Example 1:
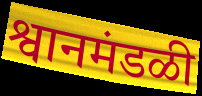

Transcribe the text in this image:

श्वानमंडळी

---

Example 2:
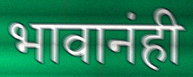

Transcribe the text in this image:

भावानंही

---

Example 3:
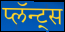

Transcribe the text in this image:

प्लॅन्ट्स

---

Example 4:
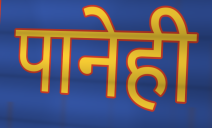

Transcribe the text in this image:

पानेही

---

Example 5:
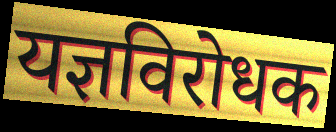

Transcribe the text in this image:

यज्ञविरोधक